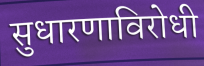
सुधारणाविरोधी